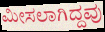
ಮೀಸಲಾಗಿದ್ದವು